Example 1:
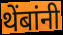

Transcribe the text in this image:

थेंबांनी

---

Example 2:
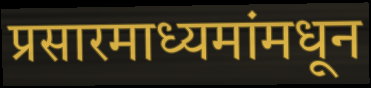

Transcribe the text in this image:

प्रसारमाध्यमांमधून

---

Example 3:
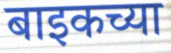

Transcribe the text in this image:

बाइकच्या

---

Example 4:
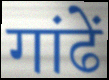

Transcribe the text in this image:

गांढें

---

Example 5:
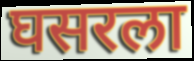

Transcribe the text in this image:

घसरला